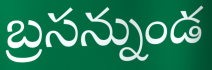
బ్రసన్నుండ